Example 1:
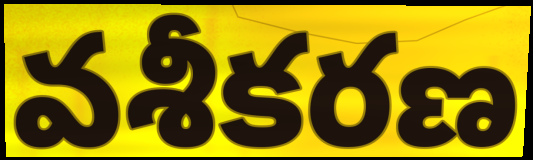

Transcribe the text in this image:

వశీకరణ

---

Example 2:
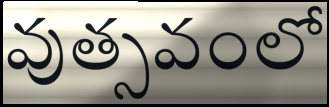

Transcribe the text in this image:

వుత్సవంలో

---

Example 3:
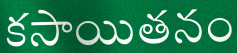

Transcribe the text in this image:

కసాయితనం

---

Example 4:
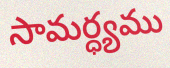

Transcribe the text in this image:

సామర్ధ్యము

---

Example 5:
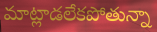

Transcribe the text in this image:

మాట్లాడలేకపోతున్నా